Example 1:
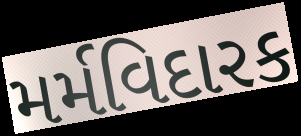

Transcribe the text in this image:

મર્મવિદારક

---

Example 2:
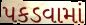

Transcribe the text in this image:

પકડવામાં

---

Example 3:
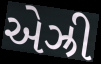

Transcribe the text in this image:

એઝ્રી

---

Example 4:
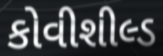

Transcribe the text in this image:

કોવીશીલ્ડ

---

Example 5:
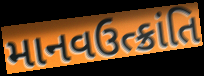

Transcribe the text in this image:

માનવઉત્ક્રાંતિ